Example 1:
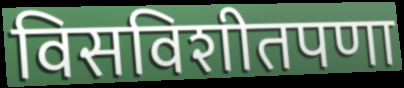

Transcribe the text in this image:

विसविशीतपणा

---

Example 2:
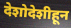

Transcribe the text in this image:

देशोदेशीहून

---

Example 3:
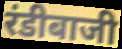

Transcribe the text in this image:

रंडीबाजी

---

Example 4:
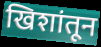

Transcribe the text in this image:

खिशांतून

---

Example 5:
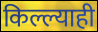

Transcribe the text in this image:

किल्ल्याही